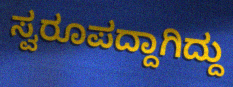
ಸ್ವರೂಪದ್ದಾಗಿದ್ದು